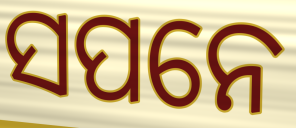
ସପନେ